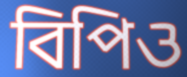
বিপিও